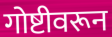
गोष्टीवरून